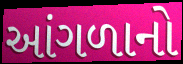
આંગળાનો